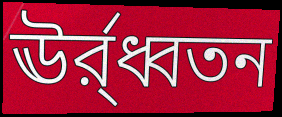
ঊর্র্ধ্বতন